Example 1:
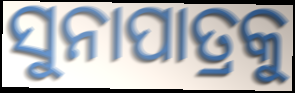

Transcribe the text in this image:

ସୁନାପାତ୍ରକୁ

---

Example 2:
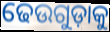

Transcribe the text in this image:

ଢେଉଗୁଡ଼ାକୁ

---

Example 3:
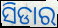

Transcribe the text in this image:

ସିଡାର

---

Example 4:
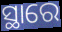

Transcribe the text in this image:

ସ୍ଥାରେ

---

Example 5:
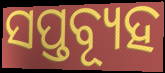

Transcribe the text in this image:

ସପ୍ତବ୍ୟୂହ